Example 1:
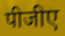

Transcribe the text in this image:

पीजीए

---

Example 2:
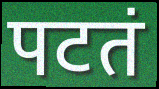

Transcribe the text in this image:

पटतं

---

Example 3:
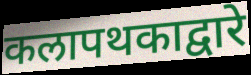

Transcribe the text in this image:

कलापथकाद्वारे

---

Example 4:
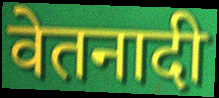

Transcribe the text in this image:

वेतनादी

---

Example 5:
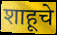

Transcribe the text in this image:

शाहूचे